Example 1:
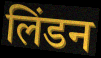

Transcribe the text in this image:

लिंडन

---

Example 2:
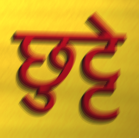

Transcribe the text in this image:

छुट्टे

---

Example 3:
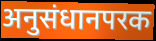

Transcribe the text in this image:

अनुसंधानपरक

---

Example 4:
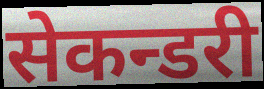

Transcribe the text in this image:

सेकन्डरी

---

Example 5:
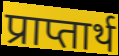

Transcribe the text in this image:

प्राप्तार्थ